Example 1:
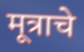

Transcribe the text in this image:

मूत्राचे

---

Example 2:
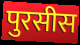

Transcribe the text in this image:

पुरसीस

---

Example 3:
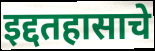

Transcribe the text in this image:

इद्दतहासाचे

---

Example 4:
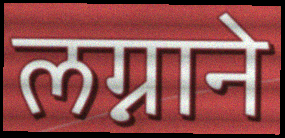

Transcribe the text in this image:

लग्नाने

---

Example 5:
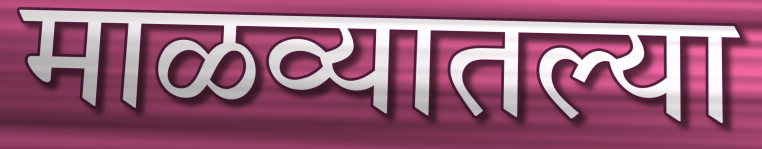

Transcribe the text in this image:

माळव्यातल्या